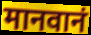
मानवानं